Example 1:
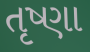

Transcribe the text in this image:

તૃષ્ણા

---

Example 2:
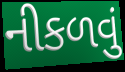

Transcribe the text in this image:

નીકળવું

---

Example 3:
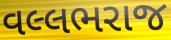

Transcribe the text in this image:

વલ્લભરાજ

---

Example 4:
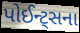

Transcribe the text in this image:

પોઈન્ટ્સના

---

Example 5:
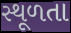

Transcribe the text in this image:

સ્થૂળતા